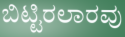
ಬಿಟ್ಟಿರಲಾರವು